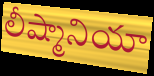
లీష్మానియా